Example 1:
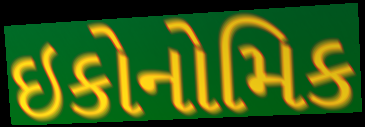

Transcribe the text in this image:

ઇકોનોમિક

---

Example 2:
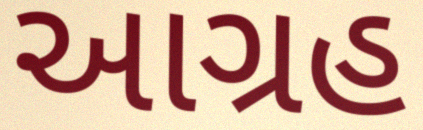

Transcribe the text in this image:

આગ્રહ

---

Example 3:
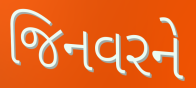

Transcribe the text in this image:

જિનવરને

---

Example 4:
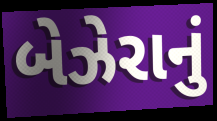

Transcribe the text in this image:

બેઝેરાનું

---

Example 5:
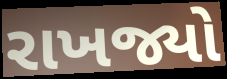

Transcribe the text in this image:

રાખજ્યો